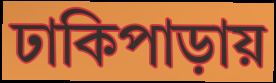
ঢাকিপাড়ায়